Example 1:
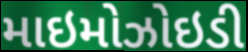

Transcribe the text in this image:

માઇમોઝોઇડી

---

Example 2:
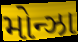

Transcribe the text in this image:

મોન્ઝા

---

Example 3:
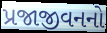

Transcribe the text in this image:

પ્રજાજીવનનો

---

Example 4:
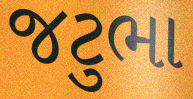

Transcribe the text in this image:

જટુભા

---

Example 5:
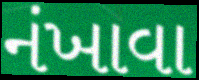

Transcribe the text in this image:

નંખાવા